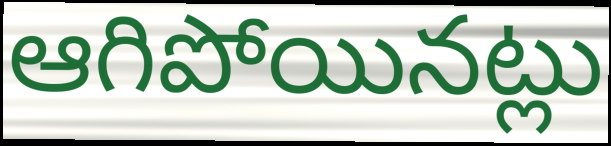
ఆగిపోయినట్లు